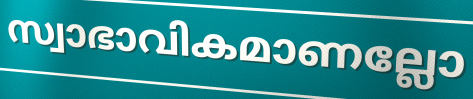
സ്വാഭാവികമാണല്ലോ